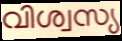
വിശ്വസ്യ